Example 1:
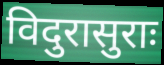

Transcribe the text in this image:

विदुरासुराः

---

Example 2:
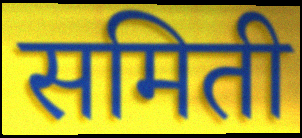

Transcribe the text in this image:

समिती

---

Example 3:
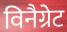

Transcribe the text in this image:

विनैग्रेट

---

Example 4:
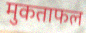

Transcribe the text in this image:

मुकताफल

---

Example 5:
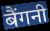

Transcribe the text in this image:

बैंगनी